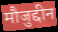
मौजुद्दीन